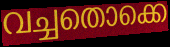
വച്ചതൊക്കെ